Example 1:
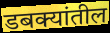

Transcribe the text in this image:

डबक्यांतील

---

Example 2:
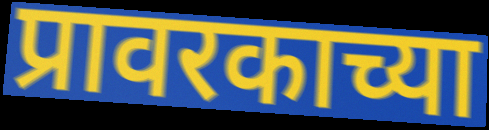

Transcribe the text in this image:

प्रावरकाच्या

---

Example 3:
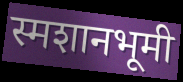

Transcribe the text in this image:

स्मशानभूमी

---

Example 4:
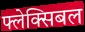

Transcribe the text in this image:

फ्लेक्सिबल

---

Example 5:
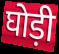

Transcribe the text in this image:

घोड़ी